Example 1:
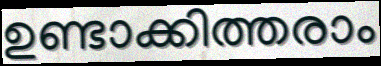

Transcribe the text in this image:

ഉണ്ടാക്കിത്തരാം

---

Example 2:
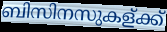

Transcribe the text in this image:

ബിസിനസുകള്ക്ക്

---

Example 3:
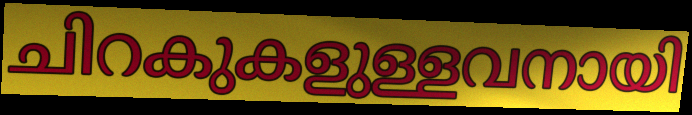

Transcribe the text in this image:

ചിറകുകളുള്ളവനായി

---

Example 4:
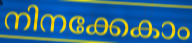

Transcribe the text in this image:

നിനക്കേകാം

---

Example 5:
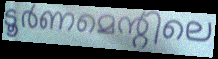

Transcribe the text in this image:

ടൂർണമെന്റിലെ